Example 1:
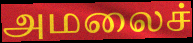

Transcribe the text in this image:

அமலைச்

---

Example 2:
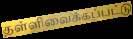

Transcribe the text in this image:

தள்ளிவைக்கப்பட்டு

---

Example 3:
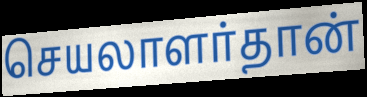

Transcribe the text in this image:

செயலாளர்தான்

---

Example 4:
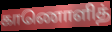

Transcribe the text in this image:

காணொளித்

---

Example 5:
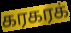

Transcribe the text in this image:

கரகரக்